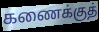
கணைக்குத்